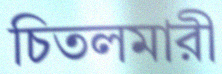
চিতলমারী